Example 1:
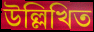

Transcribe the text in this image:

উল্লিখিত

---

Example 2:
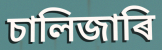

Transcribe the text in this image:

চালিজাৰি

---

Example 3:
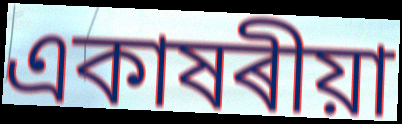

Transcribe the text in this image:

একাষৰীয়া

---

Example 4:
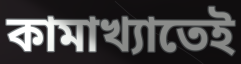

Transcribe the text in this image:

কামাখ্যাতেই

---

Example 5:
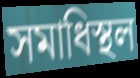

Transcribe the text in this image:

সমাধিস্থল